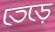
তেড়ে